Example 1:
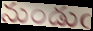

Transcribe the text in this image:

నుండుఁ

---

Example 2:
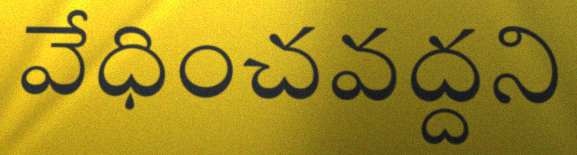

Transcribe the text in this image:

వేధించవద్దని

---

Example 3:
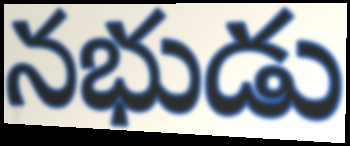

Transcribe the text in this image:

నభుడు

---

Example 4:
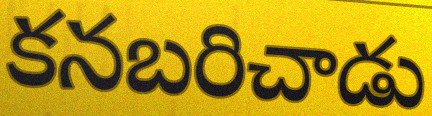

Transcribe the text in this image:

కనబరిచాడు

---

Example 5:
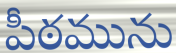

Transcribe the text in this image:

పీఠమును